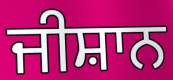
ਜੀਸ਼ਾਨ